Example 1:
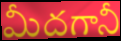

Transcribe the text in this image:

మీదగానీ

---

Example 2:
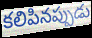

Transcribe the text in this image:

కలిపినప్పుడు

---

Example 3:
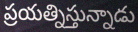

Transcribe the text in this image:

ప్రయత్నిస్తున్నాడు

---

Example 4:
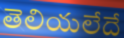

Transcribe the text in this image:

తెలియలేదే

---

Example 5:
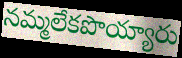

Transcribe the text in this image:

నమ్మలేకపొయ్యారు